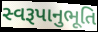
સ્વરૂપાનુભૂતિ